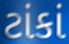
ટાંકાં